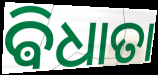
ଵିଧାତା